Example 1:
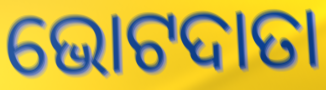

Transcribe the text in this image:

ଭୋଟଦାତା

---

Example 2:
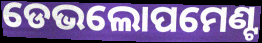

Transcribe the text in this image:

ଡେଭଲୋପମେଣ୍ଟ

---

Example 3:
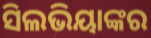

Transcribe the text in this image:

ସିଲଭିୟାଙ୍କର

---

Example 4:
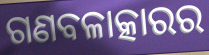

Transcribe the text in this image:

ଗଣବଳାତ୍କାରର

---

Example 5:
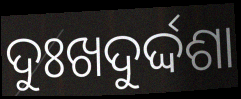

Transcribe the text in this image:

ଦୁଃଖଦୁର୍ଦ୍ଦଶା